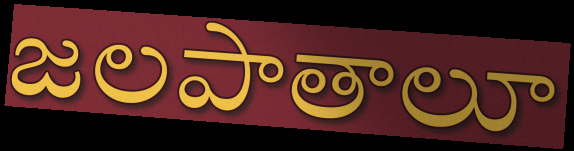
జలపాతాలూ